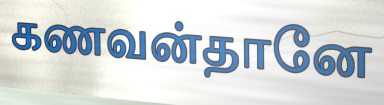
கணவன்தானே